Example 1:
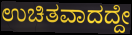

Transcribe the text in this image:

ಉಚಿತವಾದದ್ದೇ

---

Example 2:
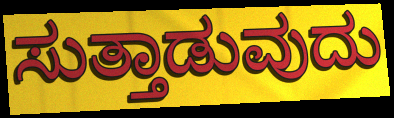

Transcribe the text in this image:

ಸುತ್ತಾಡುವುದು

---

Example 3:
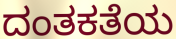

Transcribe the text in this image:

ದಂತಕತೆಯ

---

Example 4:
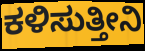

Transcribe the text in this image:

ಕಳಿಸುತ್ತೀನಿ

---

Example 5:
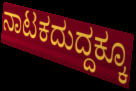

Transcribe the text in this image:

ನಾಟಕದುದ್ದಕ್ಕೂ